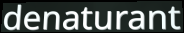
denaturant